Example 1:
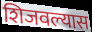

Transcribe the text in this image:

शिजवल्यास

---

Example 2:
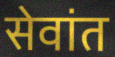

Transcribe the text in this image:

सेवांत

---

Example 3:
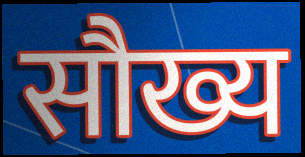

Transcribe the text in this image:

सौख्य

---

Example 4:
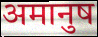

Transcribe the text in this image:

अमानुष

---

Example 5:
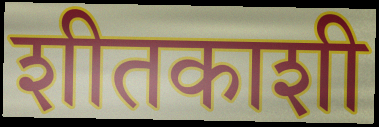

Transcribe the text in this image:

शीतकाशी